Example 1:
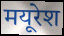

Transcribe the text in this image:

मयूरेश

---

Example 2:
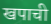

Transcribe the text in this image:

खपाची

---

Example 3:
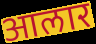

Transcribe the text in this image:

आलार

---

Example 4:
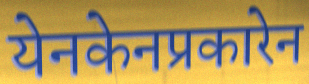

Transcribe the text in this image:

येनकेनप्रकारेन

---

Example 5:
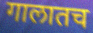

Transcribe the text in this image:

गालातच